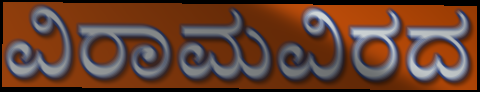
ವಿರಾಮವಿರದ